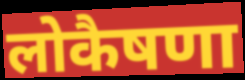
लोकैषणा